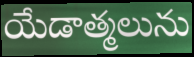
యేడాత్మలును